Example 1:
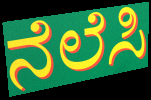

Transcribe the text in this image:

ನೆಲೆಸಿ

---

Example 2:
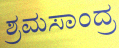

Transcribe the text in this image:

ಶ್ರಮಸಾಂದ್ರ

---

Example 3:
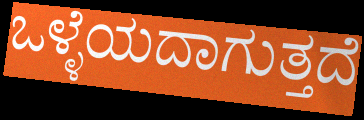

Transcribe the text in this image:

ಒಳ್ಳೆಯದಾಗುತ್ತದೆ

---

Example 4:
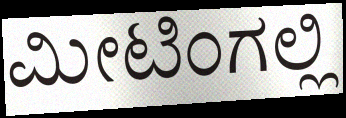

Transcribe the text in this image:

ಮೀಟಿಂಗಲ್ಲಿ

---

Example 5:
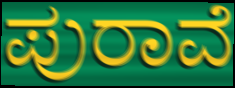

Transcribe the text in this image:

ಪುರಾವೆ